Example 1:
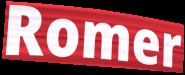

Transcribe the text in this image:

Romer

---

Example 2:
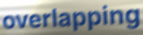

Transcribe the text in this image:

overlapping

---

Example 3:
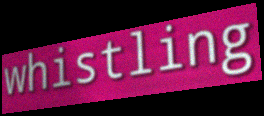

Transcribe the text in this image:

whistling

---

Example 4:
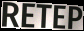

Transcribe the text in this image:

RETEP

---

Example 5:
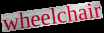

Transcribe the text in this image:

wheelchair